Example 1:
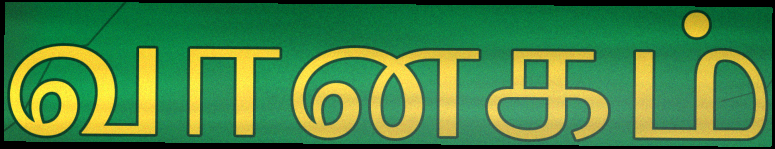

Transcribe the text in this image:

வானகம்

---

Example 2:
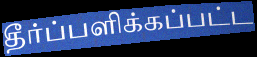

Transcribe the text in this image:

தீர்ப்பளிக்கப்பட்ட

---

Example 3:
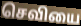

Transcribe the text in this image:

செவியை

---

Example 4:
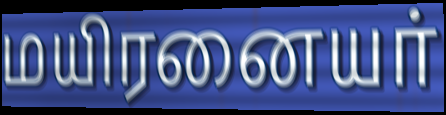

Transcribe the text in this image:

மயிரனையர்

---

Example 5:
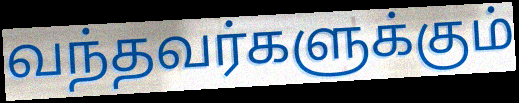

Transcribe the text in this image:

வந்தவர்களுக்கும்